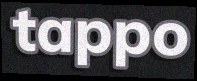
tappo